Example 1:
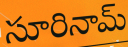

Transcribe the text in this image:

సూరినామ్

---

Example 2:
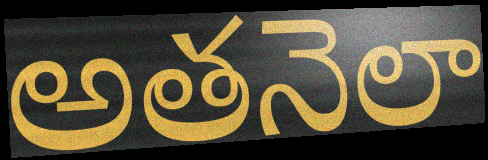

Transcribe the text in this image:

అతనెలా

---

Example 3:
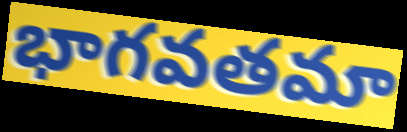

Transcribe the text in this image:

భాగవతమా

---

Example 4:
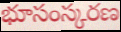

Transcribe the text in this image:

భూసంస్కరణ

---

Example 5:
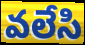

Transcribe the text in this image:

వలేసి